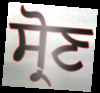
ਸ੍ਰੋਣ